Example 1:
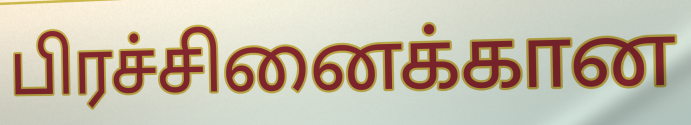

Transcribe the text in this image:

பிரச்சினைக்கான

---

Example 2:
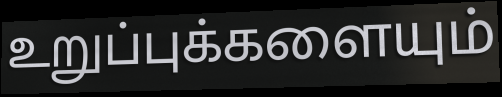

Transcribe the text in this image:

உறுப்புக்களையும்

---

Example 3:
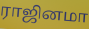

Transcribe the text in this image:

ராஜினமா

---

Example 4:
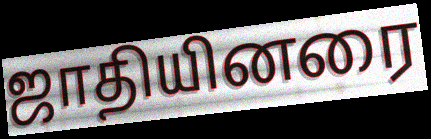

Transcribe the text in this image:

ஜாதியினரை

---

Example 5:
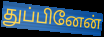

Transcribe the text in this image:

துப்பினேன்